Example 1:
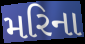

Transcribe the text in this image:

મરિના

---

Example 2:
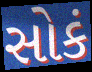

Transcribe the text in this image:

સોકં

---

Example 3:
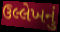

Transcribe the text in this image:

ઉલ્લેખનું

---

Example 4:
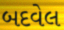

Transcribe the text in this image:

બદવેલ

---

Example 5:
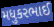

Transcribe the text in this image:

મધુકરભાઈ